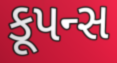
કૂપન્સ